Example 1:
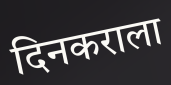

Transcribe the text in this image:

दिनकराला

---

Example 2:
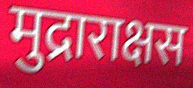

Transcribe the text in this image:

मुद्राराक्षस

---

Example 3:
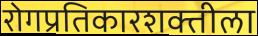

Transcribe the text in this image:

रोगप्रतिकारशक्तीला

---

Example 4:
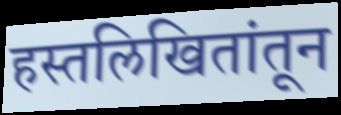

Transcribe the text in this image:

हस्तलिखितांतून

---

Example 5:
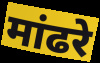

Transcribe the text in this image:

मांढरे